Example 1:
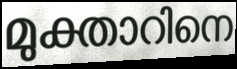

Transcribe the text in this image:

മുക്താറിനെ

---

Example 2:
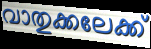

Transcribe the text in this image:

വാതുക്കലേക്ക്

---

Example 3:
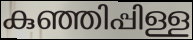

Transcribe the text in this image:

കുഞ്ഞിപ്പിള്ള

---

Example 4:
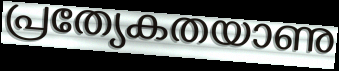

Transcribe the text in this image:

പ്രത്യേകതയാണു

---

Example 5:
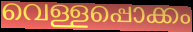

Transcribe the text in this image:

വെള്ളപ്പൊക്കം